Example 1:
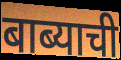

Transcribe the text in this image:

बाब्याची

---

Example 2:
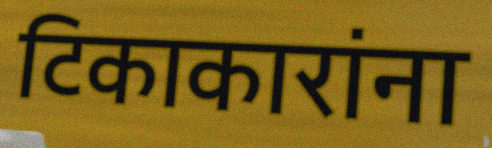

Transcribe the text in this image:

टिकाकारांना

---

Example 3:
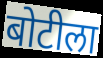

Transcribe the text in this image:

बोटीला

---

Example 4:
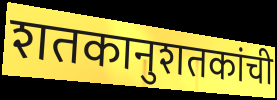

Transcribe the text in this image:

शतकानुशतकांची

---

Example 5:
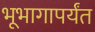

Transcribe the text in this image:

भूभागापर्यंत